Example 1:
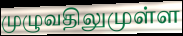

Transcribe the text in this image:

முழுவதிலுமுள்ள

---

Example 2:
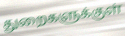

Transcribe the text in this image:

துறைகளுக்குள்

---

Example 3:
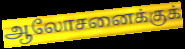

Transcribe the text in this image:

ஆலோசனைக்குக்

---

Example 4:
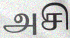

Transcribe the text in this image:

அசி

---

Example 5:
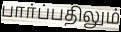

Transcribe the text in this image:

பார்ப்பதிலும்